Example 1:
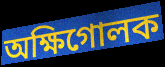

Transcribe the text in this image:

অক্ষিগোলক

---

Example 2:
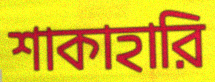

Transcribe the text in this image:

শাকাহারি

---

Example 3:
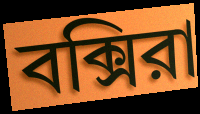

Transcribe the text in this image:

বক্সিরা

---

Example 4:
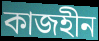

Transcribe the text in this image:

কাজহীন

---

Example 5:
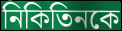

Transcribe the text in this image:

নিকিতিনকে